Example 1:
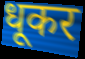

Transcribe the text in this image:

धूकर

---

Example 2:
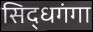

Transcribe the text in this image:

सिद्धगंगा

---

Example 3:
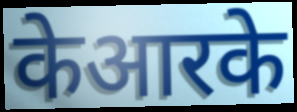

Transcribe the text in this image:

केआरके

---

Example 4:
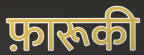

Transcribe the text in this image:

फ़ारूकी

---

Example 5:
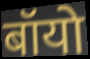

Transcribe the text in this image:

बॉयो